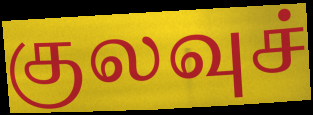
குலவுச்